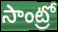
సాంట్రో